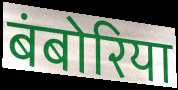
बंबोरिया